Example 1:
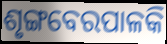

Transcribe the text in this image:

ଶୃଙ୍ଗବେରପାଳକି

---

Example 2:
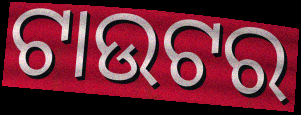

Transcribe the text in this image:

ଟାଉଟର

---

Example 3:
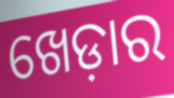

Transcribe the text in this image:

ଖେଡ଼ାର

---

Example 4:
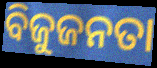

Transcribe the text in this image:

ବିଜୁଜନତା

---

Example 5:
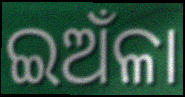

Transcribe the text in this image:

ଇଅଁଳା